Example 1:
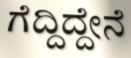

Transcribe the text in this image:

ಗೆದ್ದಿದ್ದೇನೆ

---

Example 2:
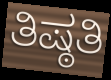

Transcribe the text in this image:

ತಿಷ್ಠತಿ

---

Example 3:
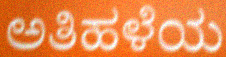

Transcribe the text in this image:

ಅತಿಹಳೆಯ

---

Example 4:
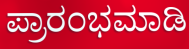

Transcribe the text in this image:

ಪ್ರಾರಂಭಮಾಡಿ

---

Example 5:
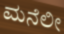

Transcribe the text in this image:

ಮನೆಲೀ